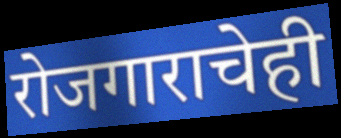
रोजगाराचेही